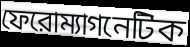
ফেরোম্যাগনেটিক